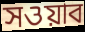
সওয়াব